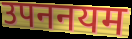
उपननयम